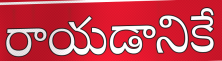
రాయడానికే